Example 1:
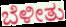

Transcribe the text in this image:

ಬೆಳೀತು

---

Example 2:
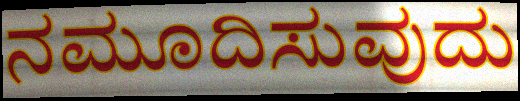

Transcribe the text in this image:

ನಮೂದಿಸುವುದು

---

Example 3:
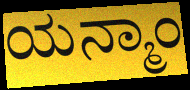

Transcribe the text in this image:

ಯನ್ಮಾಂ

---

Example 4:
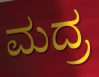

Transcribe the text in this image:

ಮದ್ರ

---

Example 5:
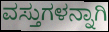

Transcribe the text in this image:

ವಸ್ತುಗಳನ್ನಾಗಿ